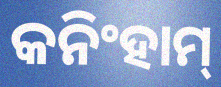
କନିଂହାମ୍